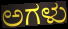
ಅಗಳು